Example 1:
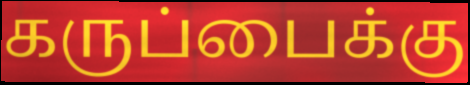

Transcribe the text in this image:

கருப்பைக்கு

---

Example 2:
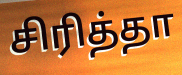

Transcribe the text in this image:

சிரித்தா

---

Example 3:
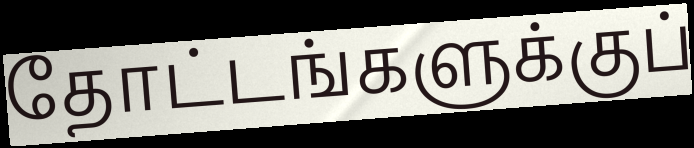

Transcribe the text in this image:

தோட்டங்களுக்குப்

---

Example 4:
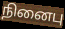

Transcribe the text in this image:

நினைபு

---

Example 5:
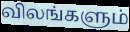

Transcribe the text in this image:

விலங்களும்